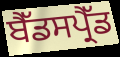
ਬੈੱਡਸਪ੍ਰੈੱਡ